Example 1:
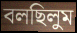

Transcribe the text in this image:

বলছিলুম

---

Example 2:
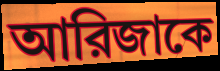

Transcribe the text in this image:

আরিজাকে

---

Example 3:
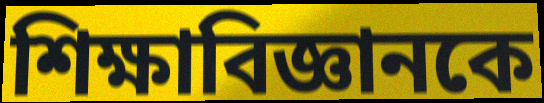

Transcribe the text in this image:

শিক্ষাবিজ্ঞানকে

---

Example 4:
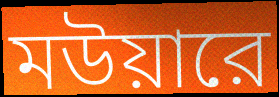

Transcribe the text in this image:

মউয়ারে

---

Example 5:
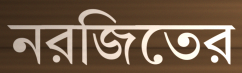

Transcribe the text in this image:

নরজিতের